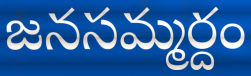
జనసమ్మర్దం